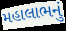
મહાલાભનું